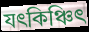
যৎকিঞ্চিৎ